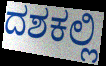
ದಶಕಲ್ಲಿ